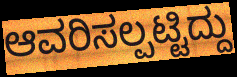
ಆವರಿಸಲ್ಪಟ್ಟಿದ್ದು